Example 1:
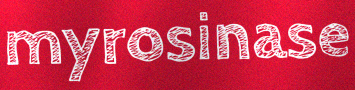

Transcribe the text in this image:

myrosinase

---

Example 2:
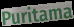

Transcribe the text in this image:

Puritama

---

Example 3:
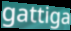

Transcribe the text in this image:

gattiga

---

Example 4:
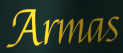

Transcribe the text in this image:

Armas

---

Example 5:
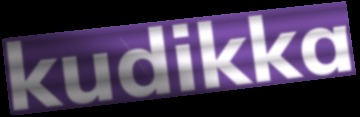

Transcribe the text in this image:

kudikka